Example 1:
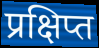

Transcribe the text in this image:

प्रक्षिप्त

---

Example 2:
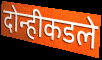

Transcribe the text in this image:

दोन्हीकडले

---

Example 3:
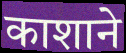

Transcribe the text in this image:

काशाने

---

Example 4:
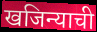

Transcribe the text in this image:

खजिन्याची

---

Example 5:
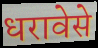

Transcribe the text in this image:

धरावेसे